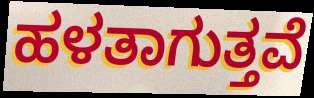
ಹಳತಾಗುತ್ತವೆ